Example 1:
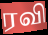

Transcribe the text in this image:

ரவி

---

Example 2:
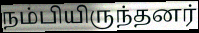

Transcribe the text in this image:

நம்பியிருந்தனர்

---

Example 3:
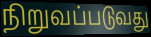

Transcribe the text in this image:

நிறுவப்படுவது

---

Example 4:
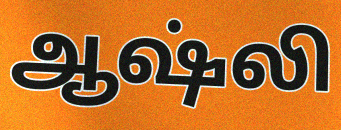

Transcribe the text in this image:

ஆஷ்லி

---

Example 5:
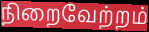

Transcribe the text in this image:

நிறைவேற்றம்